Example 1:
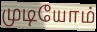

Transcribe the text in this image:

முடியோம்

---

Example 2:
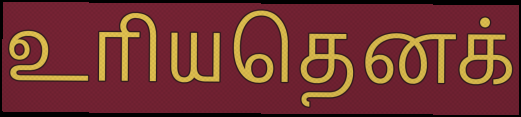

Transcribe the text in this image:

உரியதெனக்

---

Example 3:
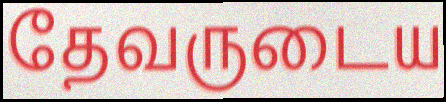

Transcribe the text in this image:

தேவருடைய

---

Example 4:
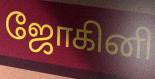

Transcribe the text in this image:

ஜோகினி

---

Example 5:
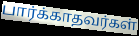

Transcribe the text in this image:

பார்க்காதவர்கள்